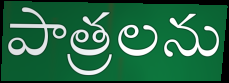
పాత్రలను